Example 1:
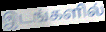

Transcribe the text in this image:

இடங்களில்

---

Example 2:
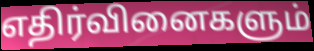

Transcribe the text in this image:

எதிர்வினைகளும்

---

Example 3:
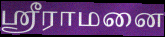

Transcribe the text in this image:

ஸ்ரீராமனை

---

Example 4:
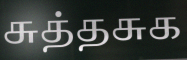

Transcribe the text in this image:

சுத்தசுக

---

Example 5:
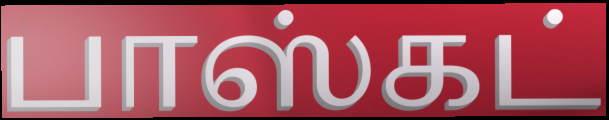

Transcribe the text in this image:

பாஸ்கட்